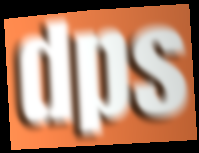
dps